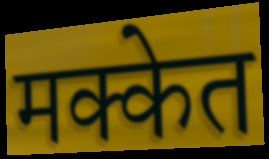
मक्केत